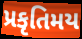
પ્રકૃતિમય